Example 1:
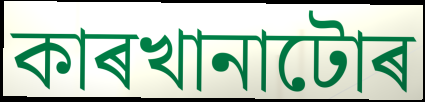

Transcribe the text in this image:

কাৰখানাটোৰ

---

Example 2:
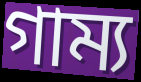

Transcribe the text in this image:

গাম্য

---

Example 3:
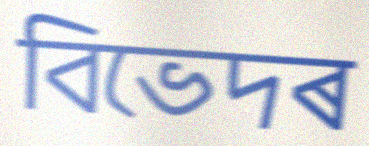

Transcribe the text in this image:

বিভেদৰ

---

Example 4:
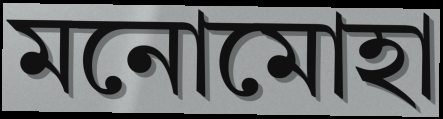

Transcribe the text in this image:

মনোমোহা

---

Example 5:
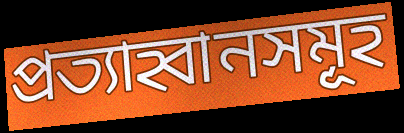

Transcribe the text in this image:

প্ৰত্যাহ্বানসমূহ